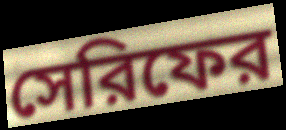
সেরিফের